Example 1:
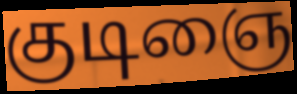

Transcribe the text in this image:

குடிஞை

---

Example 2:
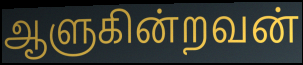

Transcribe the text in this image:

ஆளுகின்றவன்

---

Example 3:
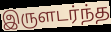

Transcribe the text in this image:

இருளடர்ந்த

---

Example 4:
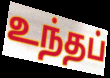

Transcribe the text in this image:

உந்தப்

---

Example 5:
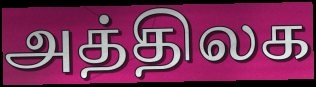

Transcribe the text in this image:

அத்திலக